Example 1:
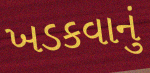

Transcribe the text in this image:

ખડકવાનું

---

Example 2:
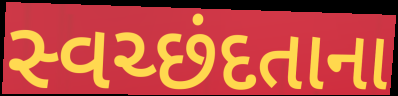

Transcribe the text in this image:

સ્વચ્છંદતાના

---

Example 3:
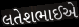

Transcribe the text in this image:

લતેશભાઈએ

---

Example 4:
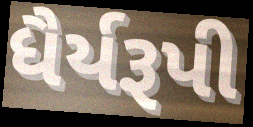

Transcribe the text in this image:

ધૈર્યરૂપી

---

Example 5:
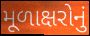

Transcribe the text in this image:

મૂળાક્ષરોનું